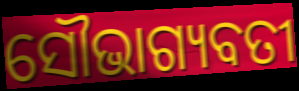
ସୌଭାଗ୍ୟବତୀ